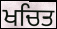
ਖਚਿਤ